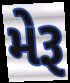
મેરૂ